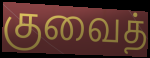
குவைத்